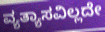
ವ್ಯತ್ಯಾಸವಿಲ್ಲದೇ